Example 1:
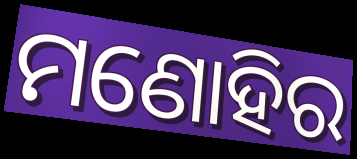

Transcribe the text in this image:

ମଣୋହିର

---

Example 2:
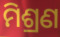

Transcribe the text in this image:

ମିଶ୍ରଣ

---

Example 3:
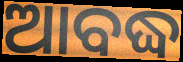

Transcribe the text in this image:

ଆବଦ୍ଧ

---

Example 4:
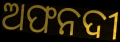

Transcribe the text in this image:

ଅଫନଦୀ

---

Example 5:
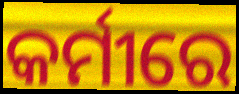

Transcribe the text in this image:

କର୍ମୀରେ